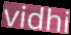
vidhi